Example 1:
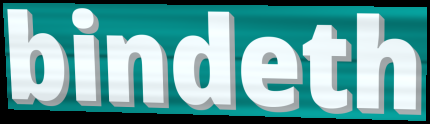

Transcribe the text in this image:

bindeth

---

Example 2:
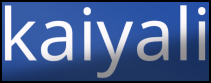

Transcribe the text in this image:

kaiyali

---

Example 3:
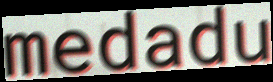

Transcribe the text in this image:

medadu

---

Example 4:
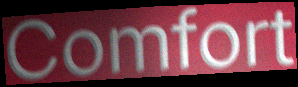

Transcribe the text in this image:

Comfort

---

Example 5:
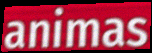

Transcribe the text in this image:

animas